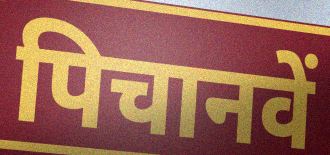
पिचानवें